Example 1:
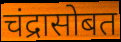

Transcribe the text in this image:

चंद्रासोबत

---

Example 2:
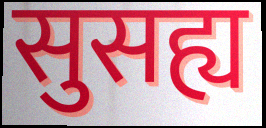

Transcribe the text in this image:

सुसह्य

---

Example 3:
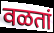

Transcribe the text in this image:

वळतां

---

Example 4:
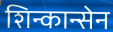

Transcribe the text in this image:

शिन्कान्सेन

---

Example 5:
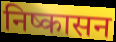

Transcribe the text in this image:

निष्कासन